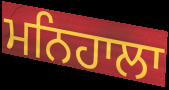
ਮਨਿਹਾਲਾ